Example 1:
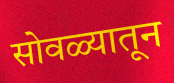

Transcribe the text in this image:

सोवळ्यातून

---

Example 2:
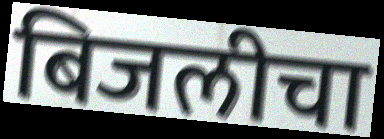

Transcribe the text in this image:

बिजलीचा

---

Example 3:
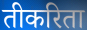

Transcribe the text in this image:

तीकरिता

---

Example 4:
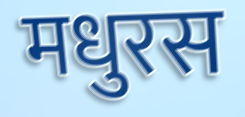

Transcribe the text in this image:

मधुरस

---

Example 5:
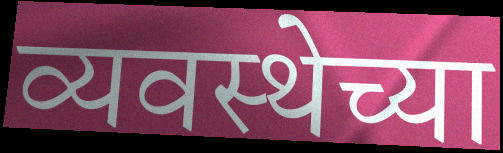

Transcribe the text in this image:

व्यवस्थेच्या